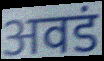
अवडं